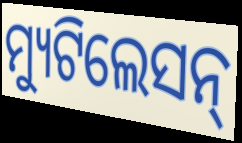
ମ୍ୟୁଟିଲେସନ୍